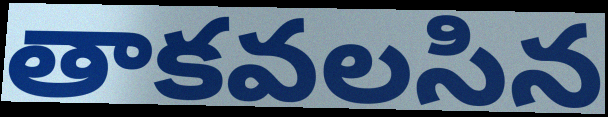
తాకవలసిన